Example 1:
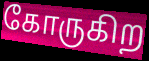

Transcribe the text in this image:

கோருகிற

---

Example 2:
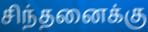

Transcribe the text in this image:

சிந்தனைக்கு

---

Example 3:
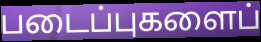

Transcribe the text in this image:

படைப்புகளைப்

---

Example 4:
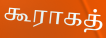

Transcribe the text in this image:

கூராகத்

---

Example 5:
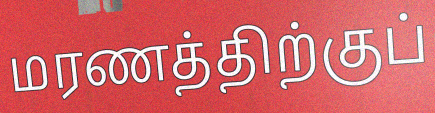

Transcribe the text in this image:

மரணத்திற்குப்